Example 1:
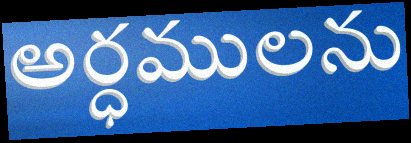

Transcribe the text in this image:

అర్ధములను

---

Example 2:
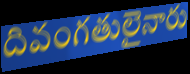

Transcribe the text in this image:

దివంగతులైనారు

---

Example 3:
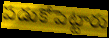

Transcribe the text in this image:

పడుకోపెట్టారు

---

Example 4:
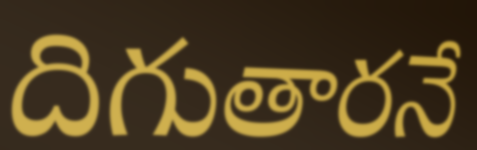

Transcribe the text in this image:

దిగుతారనే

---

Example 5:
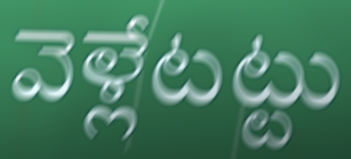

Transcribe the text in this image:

వెళ్లేటట్టు